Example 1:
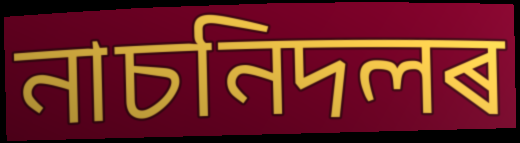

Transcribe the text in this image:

নাচনিদলৰ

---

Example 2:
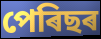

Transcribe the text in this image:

পেৰিছৰ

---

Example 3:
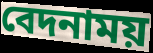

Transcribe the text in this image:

বেদনাময়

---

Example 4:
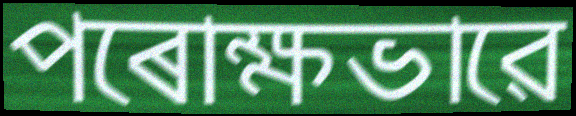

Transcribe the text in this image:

পৰোক্ষভাৱে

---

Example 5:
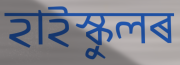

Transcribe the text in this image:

হাইস্কুলৰ